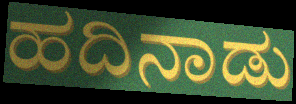
ಹದಿನಾಡು